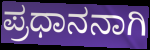
ಪ್ರಧಾನನಾಗಿ